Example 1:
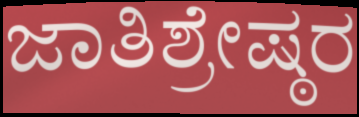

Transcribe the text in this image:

ಜಾತಿಶ್ರೇಷ್ಠರ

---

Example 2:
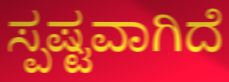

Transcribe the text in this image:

ಸ್ಪಷ್ಟವಾಗಿದೆ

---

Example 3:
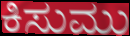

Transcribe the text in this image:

ಕಿಸುಮು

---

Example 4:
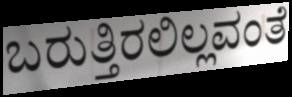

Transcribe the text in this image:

ಬರುತ್ತಿರಲಿಲ್ಲವಂತೆ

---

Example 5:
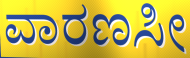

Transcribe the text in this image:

ವಾರಣಸೀ